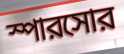
স্পারসোর